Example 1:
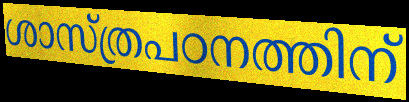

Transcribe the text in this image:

ശാസ്ത്രപഠനത്തിന്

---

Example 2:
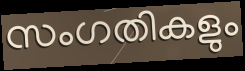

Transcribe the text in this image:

സംഗതികളും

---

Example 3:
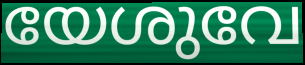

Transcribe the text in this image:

യേശുവേ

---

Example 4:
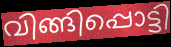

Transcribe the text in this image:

വിങ്ങിപ്പൊട്ടി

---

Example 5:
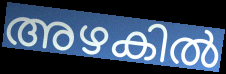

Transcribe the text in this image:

അഴകിൽ